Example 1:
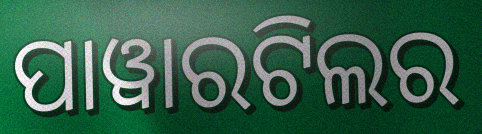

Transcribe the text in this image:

ପାୱାରଟିଲର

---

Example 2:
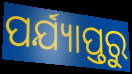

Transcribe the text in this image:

ପର୍ଯ୍ୟାପ୍ତରୁ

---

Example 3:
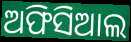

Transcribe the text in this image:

ଅଫିସିଆଲ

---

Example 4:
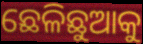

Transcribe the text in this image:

ଛେଳିଛୁଆକୁ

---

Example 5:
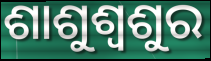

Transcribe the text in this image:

ଶାଶୁଶ୍ୱଶୁର